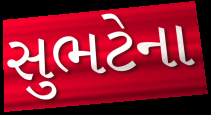
સુભટેના